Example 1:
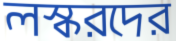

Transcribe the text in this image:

লস্করদের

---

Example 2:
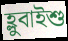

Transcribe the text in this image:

হ্লুবাইশু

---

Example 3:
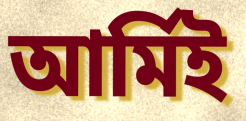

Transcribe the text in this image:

আর্মিই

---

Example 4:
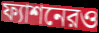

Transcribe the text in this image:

ফ্যাশনেরও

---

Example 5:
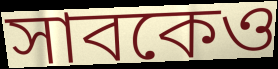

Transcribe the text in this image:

সাবকেও